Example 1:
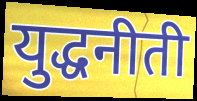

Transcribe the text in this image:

युद्धनीती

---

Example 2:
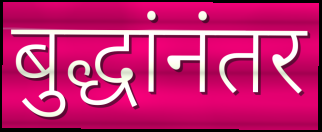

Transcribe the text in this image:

बुद्धांनंतर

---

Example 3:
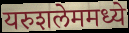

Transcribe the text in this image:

यरुशलेममध्ये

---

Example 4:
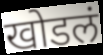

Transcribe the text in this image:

खोडलं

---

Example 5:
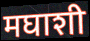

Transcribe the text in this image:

मघाशी